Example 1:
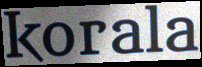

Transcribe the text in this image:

korala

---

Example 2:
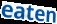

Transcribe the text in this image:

eaten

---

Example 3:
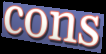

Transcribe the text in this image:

cons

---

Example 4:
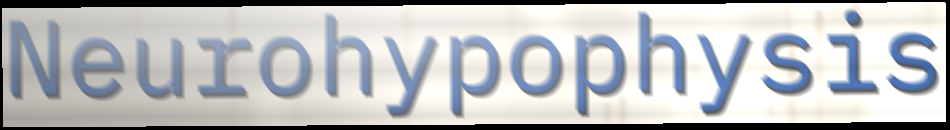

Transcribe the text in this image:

Neurohypophysis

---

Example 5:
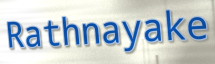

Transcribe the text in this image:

Rathnayake